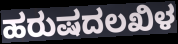
ಹರುಷದಲಖಿಳ